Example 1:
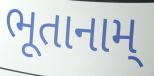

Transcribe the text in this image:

ભૂતાનામ્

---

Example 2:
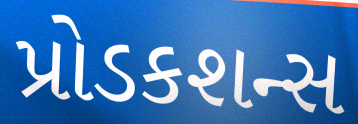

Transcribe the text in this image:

પ્રોડકશન્સ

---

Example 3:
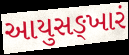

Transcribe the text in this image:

આયુસઙ્ખારં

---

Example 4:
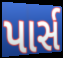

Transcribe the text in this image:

પાર્સ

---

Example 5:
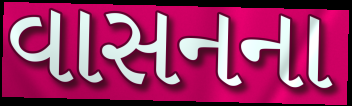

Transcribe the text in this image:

વાસનના